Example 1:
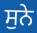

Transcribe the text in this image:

ਸੁਨੇ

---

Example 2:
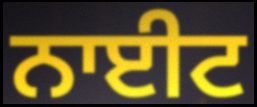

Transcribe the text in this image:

ਨਾਈਟ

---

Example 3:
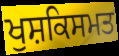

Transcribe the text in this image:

ਖੁਸ਼ਕਿਸਮਤ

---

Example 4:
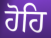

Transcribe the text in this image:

ਹੋਹਿ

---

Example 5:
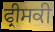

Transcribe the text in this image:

ਫ੍ਰੀਸਕੀ